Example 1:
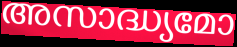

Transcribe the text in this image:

അസാദ്ധ്യമോ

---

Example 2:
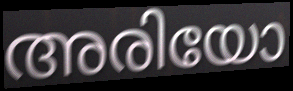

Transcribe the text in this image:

അരിയോ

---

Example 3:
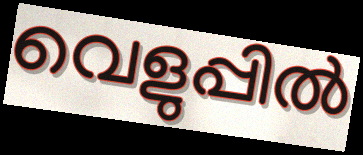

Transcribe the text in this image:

വെളുപ്പിൽ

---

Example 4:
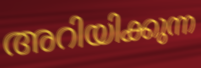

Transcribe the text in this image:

അറിയിക്കുന്ന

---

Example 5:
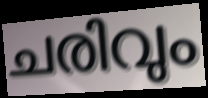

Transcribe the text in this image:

ചരിവും